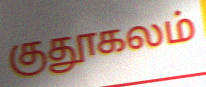
குதூகலம்